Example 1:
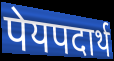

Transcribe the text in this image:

पेयपदार्थ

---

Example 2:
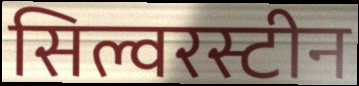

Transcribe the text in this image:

सिल्वरस्टीन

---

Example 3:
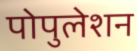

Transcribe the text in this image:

पोपुलेशन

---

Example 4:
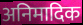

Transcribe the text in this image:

अनिमादिक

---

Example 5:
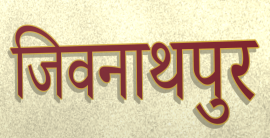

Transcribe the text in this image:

जिवनाथपुर